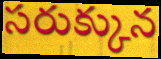
సరుక్కున